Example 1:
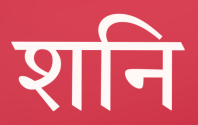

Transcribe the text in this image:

शनि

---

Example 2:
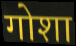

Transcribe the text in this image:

गोशा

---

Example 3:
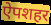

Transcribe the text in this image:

ऐपशहर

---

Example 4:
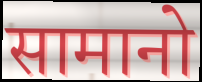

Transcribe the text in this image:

सामानो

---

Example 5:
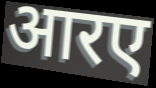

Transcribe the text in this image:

आरए